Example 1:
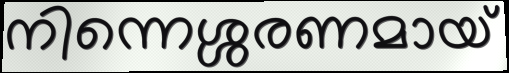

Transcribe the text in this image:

നിന്നെശ്ശരണമായ്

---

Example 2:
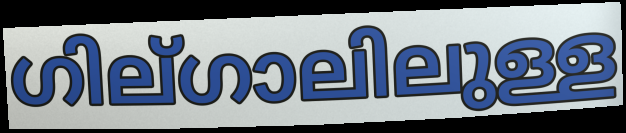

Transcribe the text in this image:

ഗില്ഗാലിലുള്ള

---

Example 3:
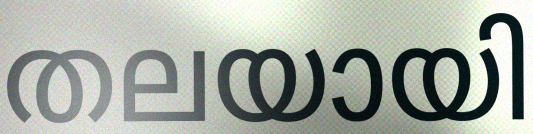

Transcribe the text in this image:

തലയായി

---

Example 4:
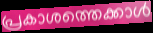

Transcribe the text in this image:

പ്രകാശത്തെക്കാൾ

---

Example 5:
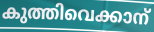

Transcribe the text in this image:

കുത്തിവെക്കാന്